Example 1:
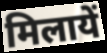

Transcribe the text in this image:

मिलायें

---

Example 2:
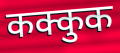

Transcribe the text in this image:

कक्कुक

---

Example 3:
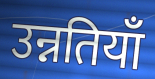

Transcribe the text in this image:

उन्नतियाँ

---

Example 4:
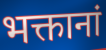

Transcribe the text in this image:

भक्तानां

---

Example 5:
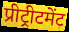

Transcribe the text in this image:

प्रीट्रीटमेंट